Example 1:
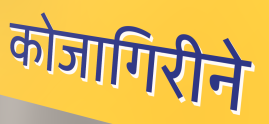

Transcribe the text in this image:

कोजागिरीने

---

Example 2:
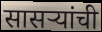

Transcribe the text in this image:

सासऱ्यांची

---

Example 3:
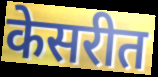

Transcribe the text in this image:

केसरीत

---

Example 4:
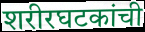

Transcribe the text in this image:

शरीरघटकांची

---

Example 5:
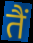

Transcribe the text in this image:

तैं